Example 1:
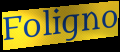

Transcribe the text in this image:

Foligno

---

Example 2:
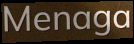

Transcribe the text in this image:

Menaga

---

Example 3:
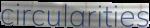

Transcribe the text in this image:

circularities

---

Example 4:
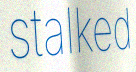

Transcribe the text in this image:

stalked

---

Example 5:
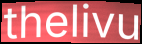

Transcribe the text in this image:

thelivu